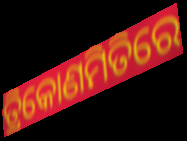
ତ୍ରିକୋଣମିତିରେ